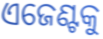
ଏଜେଣ୍ଟକୁ